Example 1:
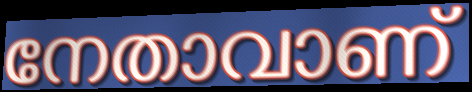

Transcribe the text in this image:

നേതാവാണ്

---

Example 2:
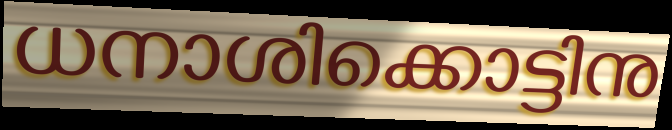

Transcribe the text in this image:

ധനാശിക്കൊട്ടിനു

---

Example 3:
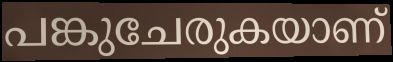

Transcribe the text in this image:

പങ്കുചേരുകയാണ്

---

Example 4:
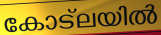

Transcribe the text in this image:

കോട്ലയിൽ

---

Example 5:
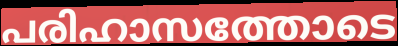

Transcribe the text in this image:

പരിഹാസത്തോടെ